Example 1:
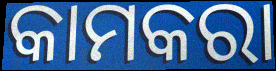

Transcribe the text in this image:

କାମକରା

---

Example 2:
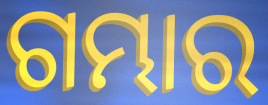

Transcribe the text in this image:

ଗମ୍ଭାର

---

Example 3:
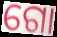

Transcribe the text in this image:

ଗୋ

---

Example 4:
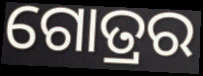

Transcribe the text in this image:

ଗୋତ୍ରର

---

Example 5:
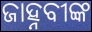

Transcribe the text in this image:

ଜାହ୍ନବୀଙ୍କ